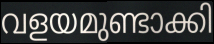
വളയമുണ്ടാക്കി